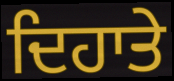
ਦਿਹਾਤੇ